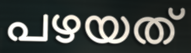
പഴയത്